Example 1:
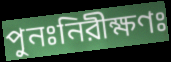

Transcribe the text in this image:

পুনঃনিরীক্ষণঃ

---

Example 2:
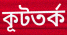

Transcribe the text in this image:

কূটতর্ক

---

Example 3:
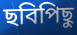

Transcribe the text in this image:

ছবিপিছু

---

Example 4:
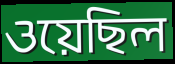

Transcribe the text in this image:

ওয়েছিল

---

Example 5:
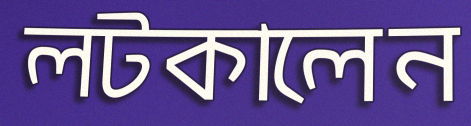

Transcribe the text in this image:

লটকালেন